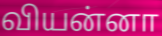
வியன்னா